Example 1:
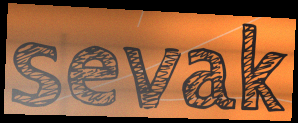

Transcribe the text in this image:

sevak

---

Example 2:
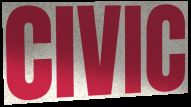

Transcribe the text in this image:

CIVIC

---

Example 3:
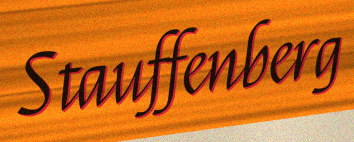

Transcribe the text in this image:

Stauffenberg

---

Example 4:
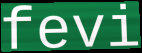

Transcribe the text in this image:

fevi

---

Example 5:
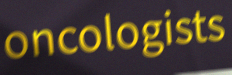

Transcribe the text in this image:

oncologists